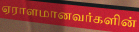
ஏராளமானவர்களின்